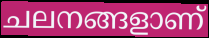
ചലനങ്ങളാണ്